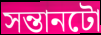
সন্তানটো